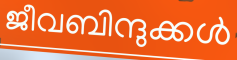
ജീവബിന്ദുക്കൾ